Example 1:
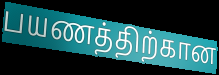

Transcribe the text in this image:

பயணத்திற்கான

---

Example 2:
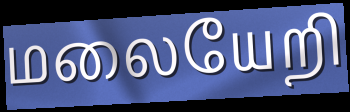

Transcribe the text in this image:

மலையேறி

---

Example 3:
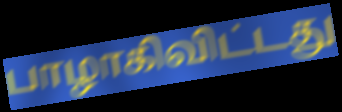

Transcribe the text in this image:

பாழாகிவிட்டது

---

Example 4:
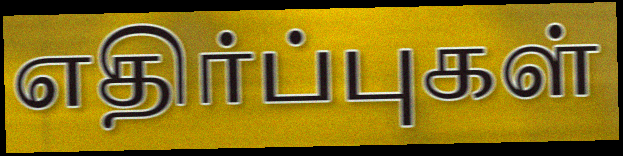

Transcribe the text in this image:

எதிர்ப்புகள்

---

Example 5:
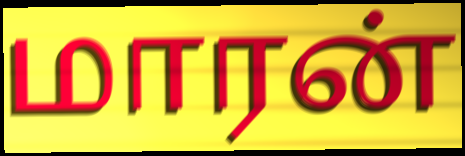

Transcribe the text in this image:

மாரன்